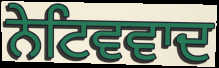
ਨੇਟਿਵਵਾਦ